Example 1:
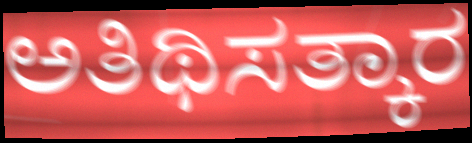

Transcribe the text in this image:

ಅತಿಥಿಸತ್ಕಾರ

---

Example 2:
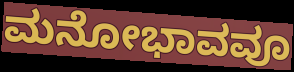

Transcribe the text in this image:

ಮನೋಭಾವವೂ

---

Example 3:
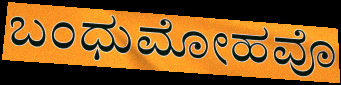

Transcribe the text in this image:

ಬಂಧುಮೋಹವೊ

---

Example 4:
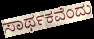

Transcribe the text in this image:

ಸಾರ್ಥಕವೆಂದು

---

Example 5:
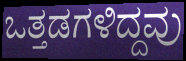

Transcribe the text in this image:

ಒತ್ತಡಗಳಿದ್ದವು